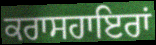
ਕਰਾਸਹਾਇਰਾਂ